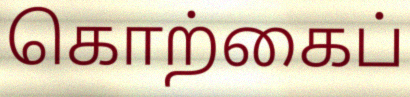
கொற்கைப்